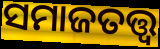
ସମାଜତତ୍ତ୍ୱ